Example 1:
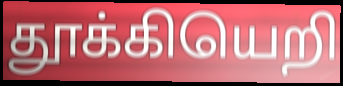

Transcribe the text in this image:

தூக்கியெறி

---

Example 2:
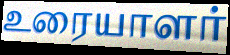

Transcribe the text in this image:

உரையாளர்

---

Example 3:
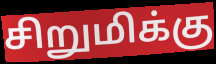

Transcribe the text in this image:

சிறுமிக்கு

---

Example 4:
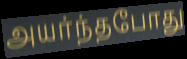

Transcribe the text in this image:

அயர்ந்தபோது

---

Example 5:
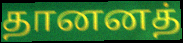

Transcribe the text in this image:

தானனத்